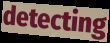
detecting